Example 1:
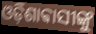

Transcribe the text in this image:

ଓଡ଼ିଶାଵାସୀଙ୍କୁ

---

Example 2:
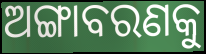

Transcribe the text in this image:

ଅଙ୍ଗାବରଣକୁ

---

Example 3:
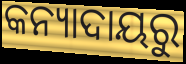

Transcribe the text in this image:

କନ୍ୟାଦାୟରୁ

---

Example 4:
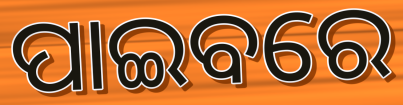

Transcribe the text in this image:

ପାଇବରେ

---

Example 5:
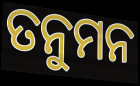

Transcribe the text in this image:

ତନୁମନ